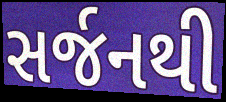
સર્જનથી